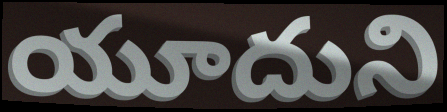
యూదుని